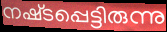
നഷ്‌ടപ്പെട്ടിരുന്നു